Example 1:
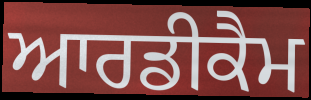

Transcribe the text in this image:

ਆਰਡੀਕੈਮ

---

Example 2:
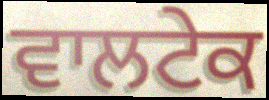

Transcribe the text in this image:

ਵਾਲਟੇਕ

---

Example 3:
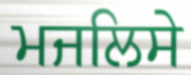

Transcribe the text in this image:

ਮਜਲਿਸੇ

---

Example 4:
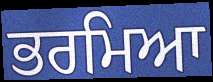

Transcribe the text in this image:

ਭਰਮਿਆ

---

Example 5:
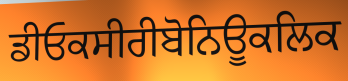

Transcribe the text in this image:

ਡੀਓਕਸੀਰੀਬੋਨਿਊਕਲਿਕ